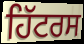
ਹਿੱਟਰਸ